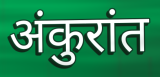
अंकुरांत